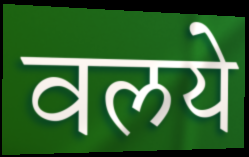
वलये